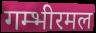
गम्भीरमल